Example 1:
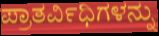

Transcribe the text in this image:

ಪ್ರಾತರ್ವಿಧಿಗಳನ್ನು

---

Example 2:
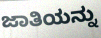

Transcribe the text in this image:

ಜಾತಿಯನ್ನು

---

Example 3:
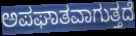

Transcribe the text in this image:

ಅಪಘಾತವಾಗುತ್ತದೆ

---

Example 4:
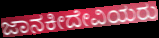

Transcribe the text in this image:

ಜಾನಕೀದೇವಿಯರು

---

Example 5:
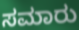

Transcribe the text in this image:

ಸಮಾರು